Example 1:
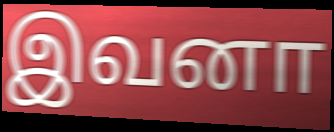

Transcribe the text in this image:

இவனா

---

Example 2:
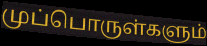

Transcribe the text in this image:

முப்பொருள்களும்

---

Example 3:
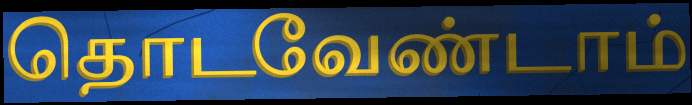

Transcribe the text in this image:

தொடவேண்டாம்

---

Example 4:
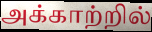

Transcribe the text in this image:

அக்காற்றில்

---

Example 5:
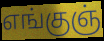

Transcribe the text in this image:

எங்குஞ்